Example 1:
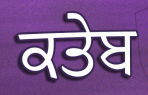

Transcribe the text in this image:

ਕਤੇਬ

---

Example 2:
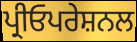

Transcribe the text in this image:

ਪ੍ਰੀਓਪਰੇਸ਼ਨਲ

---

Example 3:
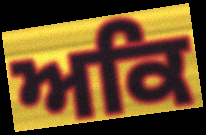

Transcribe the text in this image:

ਅਕਿ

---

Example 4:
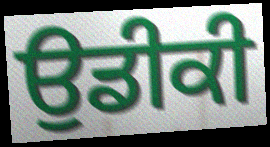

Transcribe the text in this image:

ਉਡੀਕੀ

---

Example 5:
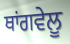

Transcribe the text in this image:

ਥਾਂਗਵੇਲੂ